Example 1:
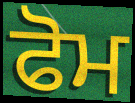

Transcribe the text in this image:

ਫੋਮ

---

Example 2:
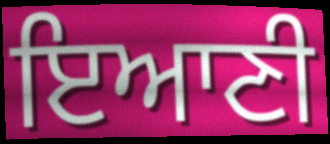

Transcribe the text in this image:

ਇਆਣੀ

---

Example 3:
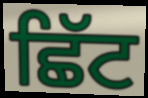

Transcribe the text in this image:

ਛਿੱਟ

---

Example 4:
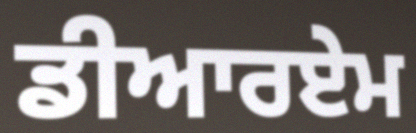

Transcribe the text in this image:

ਡੀਆਰਏਮ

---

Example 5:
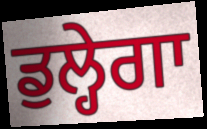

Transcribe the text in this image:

ਡੁਲ੍ਹੇਗਾ